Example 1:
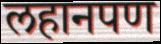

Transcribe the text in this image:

लहानपण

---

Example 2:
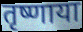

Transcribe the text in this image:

तृष्णाया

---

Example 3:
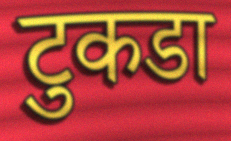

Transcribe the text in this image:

टुकडा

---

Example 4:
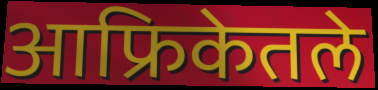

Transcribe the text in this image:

आफ्रिकेतले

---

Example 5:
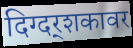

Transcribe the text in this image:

दिग्दर्शकावर